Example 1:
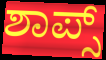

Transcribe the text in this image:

ಶಾಪ್ಸ್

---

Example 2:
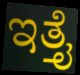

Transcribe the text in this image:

ಇತ್ತೈ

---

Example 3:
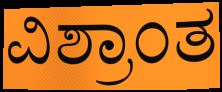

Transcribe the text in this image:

ವಿಶ್ರಾಂತ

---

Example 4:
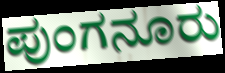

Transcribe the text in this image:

ಪುಂಗನೂರು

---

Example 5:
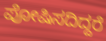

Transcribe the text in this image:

ಪೋಷಿಸದಿದ್ದರೆ